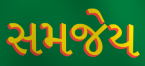
સમજેય